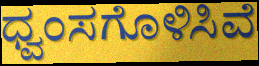
ಧ್ವಂಸಗೊಳಿಸಿವೆ